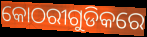
କୋଠରୀଗୁଡିକରେ